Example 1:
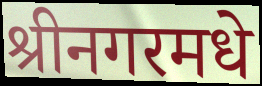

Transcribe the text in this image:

श्रीनगरमधे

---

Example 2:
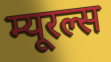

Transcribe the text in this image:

म्यूरल्स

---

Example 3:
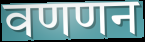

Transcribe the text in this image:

वणणन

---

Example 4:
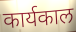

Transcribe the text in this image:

कार्यकाल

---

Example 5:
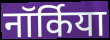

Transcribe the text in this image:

नॉर्किया